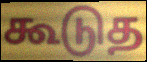
கூடுத